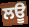
ਲਊ